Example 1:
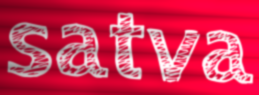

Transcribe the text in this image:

satva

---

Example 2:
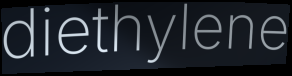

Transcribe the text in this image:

diethylene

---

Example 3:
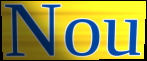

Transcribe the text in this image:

Nou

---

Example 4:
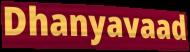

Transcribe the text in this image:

Dhanyavaad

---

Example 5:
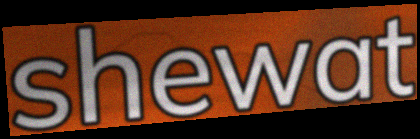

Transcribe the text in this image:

shewat